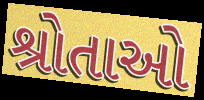
શ્રોતાઓ